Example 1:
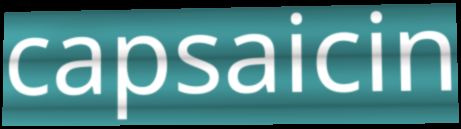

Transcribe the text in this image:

capsaicin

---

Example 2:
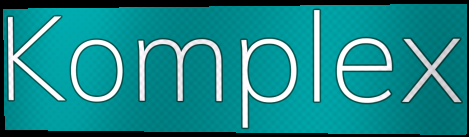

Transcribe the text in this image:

Komplex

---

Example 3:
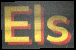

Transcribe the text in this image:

Els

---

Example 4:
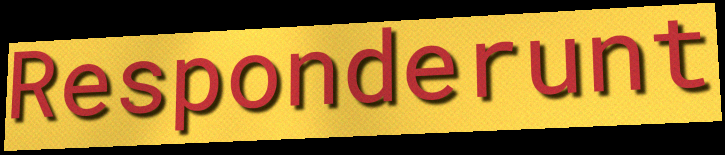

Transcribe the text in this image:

Responderunt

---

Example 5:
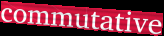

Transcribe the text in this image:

commutative